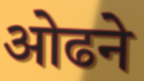
ओढने